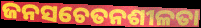
ଜନସଚେତନଶୀଳତା